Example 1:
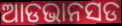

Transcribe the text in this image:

ଆଡଭାନସଡ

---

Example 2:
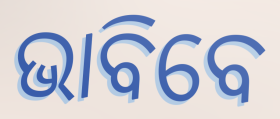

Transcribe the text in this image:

ଭାବିବେ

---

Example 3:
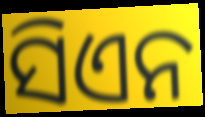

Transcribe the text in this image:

ସିଏନ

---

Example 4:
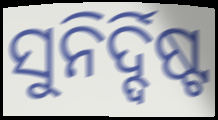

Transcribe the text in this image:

ସୁନିର୍ଦ୍ଦିଷ୍ଟ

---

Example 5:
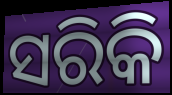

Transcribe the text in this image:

ସରିକି